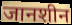
जानशीन